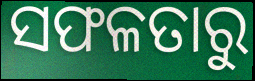
ସଫଳତାରୁ